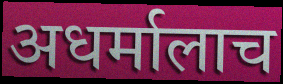
अधर्मालाच